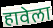
हावेला